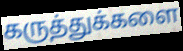
கருத்துக்களை